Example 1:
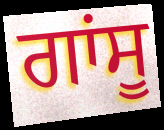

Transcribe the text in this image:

ਗਾਂਸੂ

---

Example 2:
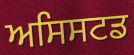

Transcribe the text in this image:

ਅਸਿਸਟਡ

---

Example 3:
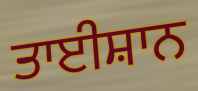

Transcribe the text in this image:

ਤਾਈਸ਼ਾਨ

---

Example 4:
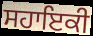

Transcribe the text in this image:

ਸਹਾਇਕੀ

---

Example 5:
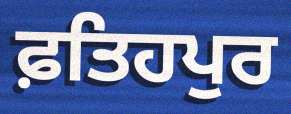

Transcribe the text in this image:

ਫ਼ਤਿਹਪੁਰ